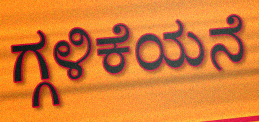
ಗ್ಗಳಿಕೆಯನೆ